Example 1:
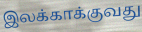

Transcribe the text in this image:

இலக்காக்குவது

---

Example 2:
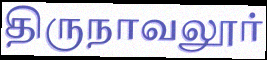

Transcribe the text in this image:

திருநாவலூர்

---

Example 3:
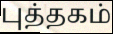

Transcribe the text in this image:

புத்தகம்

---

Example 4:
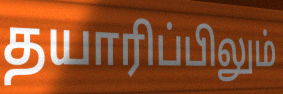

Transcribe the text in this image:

தயாரிப்பிலும்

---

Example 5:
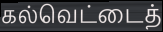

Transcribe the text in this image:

கல்வெட்டைத்